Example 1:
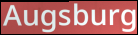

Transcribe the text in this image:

Augsburg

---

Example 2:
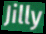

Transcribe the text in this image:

Jilly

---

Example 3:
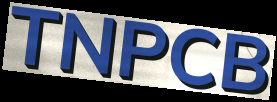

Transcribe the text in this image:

TNPCB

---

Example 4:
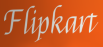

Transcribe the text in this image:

Flipkart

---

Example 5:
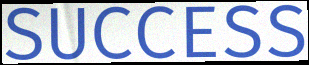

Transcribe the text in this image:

SUCCESS